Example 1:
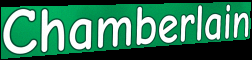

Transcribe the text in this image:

Chamberlain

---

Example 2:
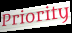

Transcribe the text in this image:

Priority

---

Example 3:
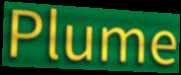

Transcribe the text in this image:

Plume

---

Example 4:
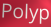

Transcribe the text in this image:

Polyp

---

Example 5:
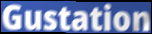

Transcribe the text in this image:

Gustation